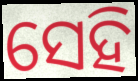
ସେହି